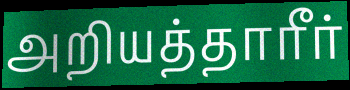
அறியத்தாரீர்